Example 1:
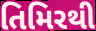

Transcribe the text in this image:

તિમિરથી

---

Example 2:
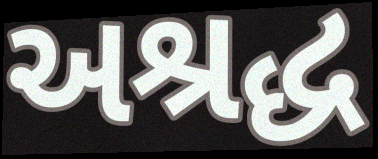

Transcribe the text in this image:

અશ્રદ્ધ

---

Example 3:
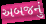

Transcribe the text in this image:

અબજનું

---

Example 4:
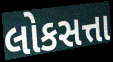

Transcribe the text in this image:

લોકસત્તા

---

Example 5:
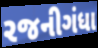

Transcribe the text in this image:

રજનીગંધા